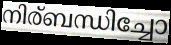
നിര്ബന്ധിച്ചോ